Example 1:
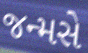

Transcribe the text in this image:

જન્મસે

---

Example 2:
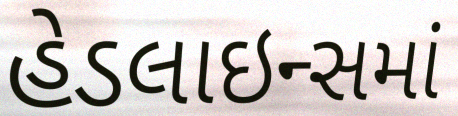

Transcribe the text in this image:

હેડલાઇન્સમાં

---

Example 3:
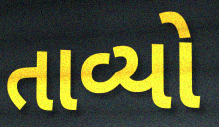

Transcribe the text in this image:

તાવ્યો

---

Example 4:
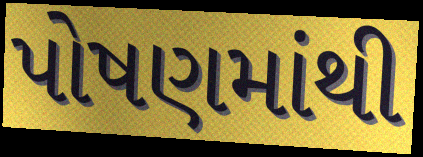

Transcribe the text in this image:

પોષણમાંથી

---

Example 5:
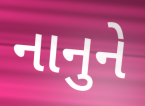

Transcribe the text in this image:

નાનુને